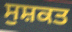
ਸੁਸ਼ਕਤ